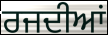
ਰਜਦੀਆਂ